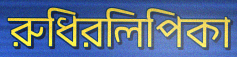
রুধিরলিপিকা